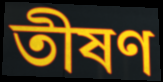
তীষণ